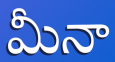
మీనా